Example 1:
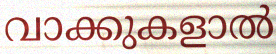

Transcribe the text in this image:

വാക്കുകളാൽ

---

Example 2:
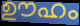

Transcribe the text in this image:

ഊഹം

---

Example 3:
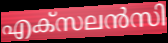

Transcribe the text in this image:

എക്സലൻസി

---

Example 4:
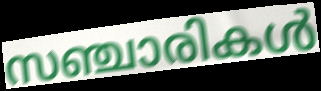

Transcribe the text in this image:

സഞ്ചാരികൾ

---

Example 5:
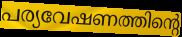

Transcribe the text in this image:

പര്യവേഷണത്തിന്റെ